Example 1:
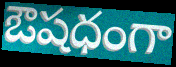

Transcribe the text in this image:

ఔషధంగా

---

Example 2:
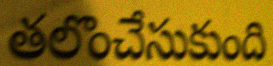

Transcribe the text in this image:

తలొంచేసుకుంది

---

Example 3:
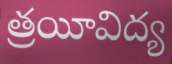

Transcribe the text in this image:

త్రయీవిద్య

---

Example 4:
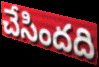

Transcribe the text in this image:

చేసిందది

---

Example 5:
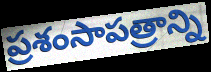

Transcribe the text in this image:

ప్రశంసాపత్రాన్ని